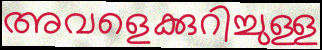
അവളെക്കുറിച്ചുള്ള